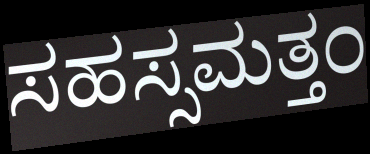
ಸಹಸ್ಸಮತ್ತಂ